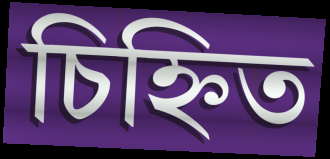
চিহ্নিত